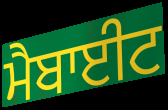
ਮੈਬਾਈਟ